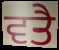
ਵਤੈ